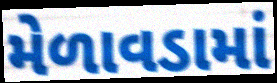
મેળાવડામાં